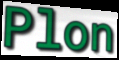
Plon